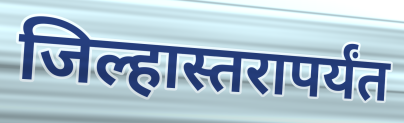
जिल्हास्तरापर्यंत